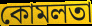
কোমলতা